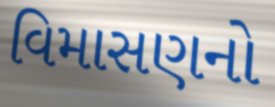
વિમાસણનો